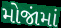
મોજાંમાં